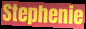
Stephenie